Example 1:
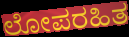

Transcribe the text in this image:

ಲೋಪರಹಿತ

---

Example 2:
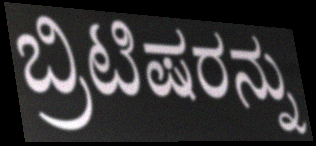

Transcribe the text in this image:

ಬ್ರಿಟಿಷರನ್ನು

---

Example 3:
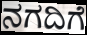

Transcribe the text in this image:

ನಗದಿಗೆ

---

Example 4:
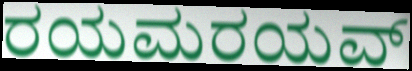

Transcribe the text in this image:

ರಯಮರಯವ್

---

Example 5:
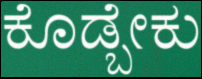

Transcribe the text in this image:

ಕೊಡ್ಬೇಕು